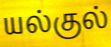
யல்குல்